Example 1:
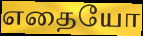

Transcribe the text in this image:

எதையோ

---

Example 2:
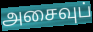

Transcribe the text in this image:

அசைவுப்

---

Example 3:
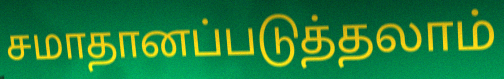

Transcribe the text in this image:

சமாதானப்படுத்தலாம்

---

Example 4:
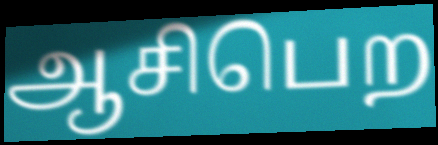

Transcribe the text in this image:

ஆசிபெற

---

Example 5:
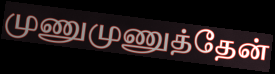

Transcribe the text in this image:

முணுமுணுத்தேன்